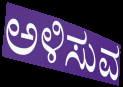
ಅಳಿಸುವ